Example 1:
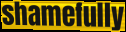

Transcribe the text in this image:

shamefully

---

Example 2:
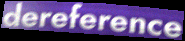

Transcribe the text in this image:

dereference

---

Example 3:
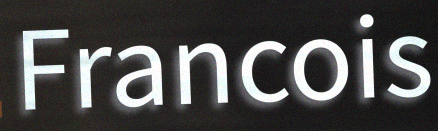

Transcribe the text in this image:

Francois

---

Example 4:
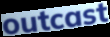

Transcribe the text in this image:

outcast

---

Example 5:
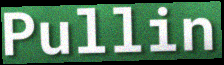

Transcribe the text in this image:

Pullin